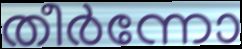
തീർന്നോ